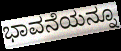
ಭಾವನೆಯನ್ನೂ